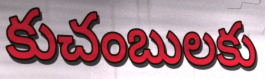
కుచంబులకు